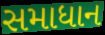
સમાધાન